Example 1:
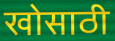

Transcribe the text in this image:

खोसाठी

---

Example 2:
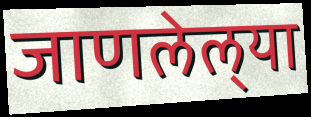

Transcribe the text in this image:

जाणलेल्या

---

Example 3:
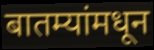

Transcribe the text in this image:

बातम्यांमधून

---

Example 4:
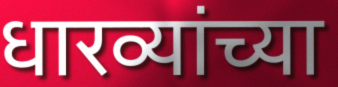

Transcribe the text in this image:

धारव्यांच्या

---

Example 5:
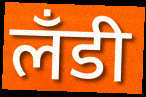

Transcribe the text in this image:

लँडी